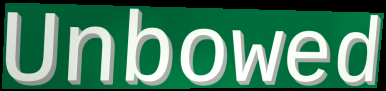
Unbowed